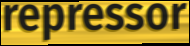
repressor